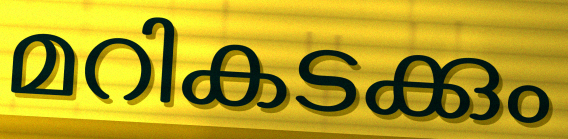
മറികടക്കും